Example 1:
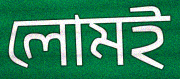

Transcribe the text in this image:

লোমই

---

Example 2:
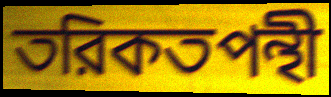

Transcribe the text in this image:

তরিকতপন্থী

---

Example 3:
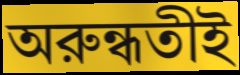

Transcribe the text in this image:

অরুন্ধতীই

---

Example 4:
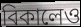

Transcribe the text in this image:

বিকালেও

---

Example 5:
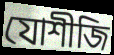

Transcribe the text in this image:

যোশীজি